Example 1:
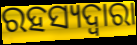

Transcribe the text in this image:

ରହସ୍ୟଦ୍ଵାରା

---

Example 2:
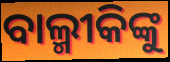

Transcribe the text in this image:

ବାଲ୍ମୀକିଙ୍କୁ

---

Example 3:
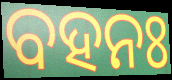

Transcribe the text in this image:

ବହନଃ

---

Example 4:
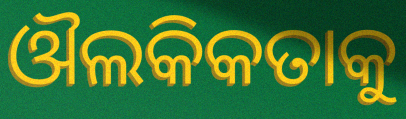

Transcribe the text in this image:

ଔଲକିକତାକୁ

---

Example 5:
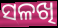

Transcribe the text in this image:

ସଳଖି